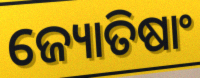
ଜ୍ୟୋତିଷାଂ